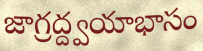
జాగ్రద్ద్వయాభాసం